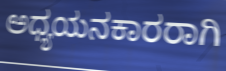
ಅಧ್ಯಯನಕಾರರಾಗಿ